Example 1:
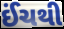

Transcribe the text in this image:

ઈંચથી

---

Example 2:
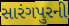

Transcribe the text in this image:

સારંગપુરની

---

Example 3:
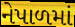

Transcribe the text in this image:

નેપાળમાં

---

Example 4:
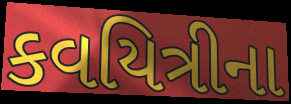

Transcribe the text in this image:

કવયિત્રીના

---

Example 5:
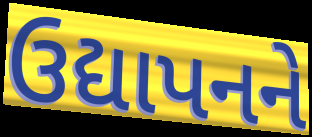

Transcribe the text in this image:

ઉદ્યાપનને